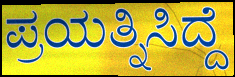
ಪ್ರಯತ್ನಿಸಿದ್ದೆ